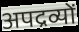
अपद्रव्यों